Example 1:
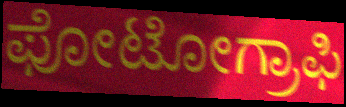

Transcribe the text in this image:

ಫೋಟೋಗ್ರಾಫಿ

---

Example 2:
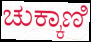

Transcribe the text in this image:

ಚುಕ್ಕಾಣಿ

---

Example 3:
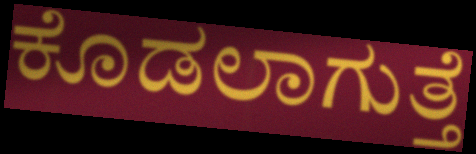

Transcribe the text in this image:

ಕೊಡಲಾಗುತ್ತೆ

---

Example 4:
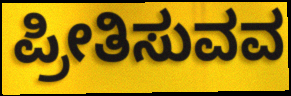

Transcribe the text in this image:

ಪ್ರೀತಿಸುವವ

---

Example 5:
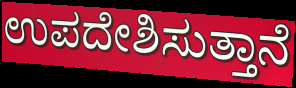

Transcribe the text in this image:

ಉಪದೇಶಿಸುತ್ತಾನೆ